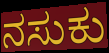
ನಸುಕು